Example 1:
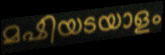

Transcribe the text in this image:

മഷിയടയാളം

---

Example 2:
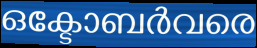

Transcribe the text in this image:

ഒക്ടോബർവരെ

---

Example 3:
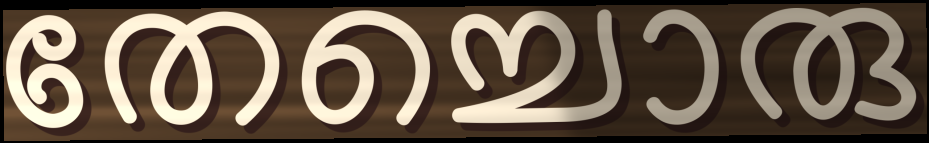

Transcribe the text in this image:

തേച്ചൊരു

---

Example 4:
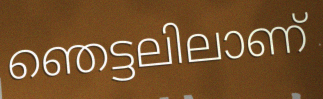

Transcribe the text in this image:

ഞെട്ടലിലാണ്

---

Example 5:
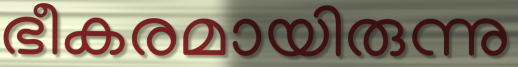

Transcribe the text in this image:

ഭീകരമായിരുന്നു